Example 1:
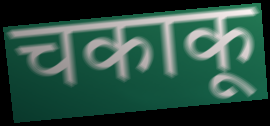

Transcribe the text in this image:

चकाकू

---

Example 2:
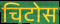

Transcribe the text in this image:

चिटोस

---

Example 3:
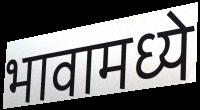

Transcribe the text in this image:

भावामध्ये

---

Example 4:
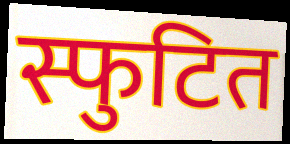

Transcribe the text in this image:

स्फुटित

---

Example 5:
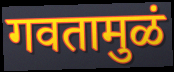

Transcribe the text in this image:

गवतामुळं